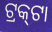
ଟ୍ରକ୍‌ଟା